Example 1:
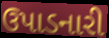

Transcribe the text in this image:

ઉપાડનારી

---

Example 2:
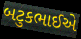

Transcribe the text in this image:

બટુકભાઈએ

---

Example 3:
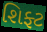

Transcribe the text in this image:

શિફ્ટ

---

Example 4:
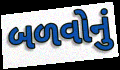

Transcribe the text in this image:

બળવોનું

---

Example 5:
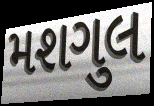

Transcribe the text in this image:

મશગુલ